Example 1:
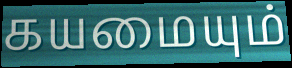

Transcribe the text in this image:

கயமையும்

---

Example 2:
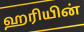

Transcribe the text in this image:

ஹரியின்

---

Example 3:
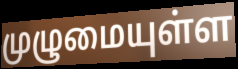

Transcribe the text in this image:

முழுமையுள்ள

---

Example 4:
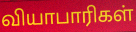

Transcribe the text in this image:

வியாபாரிகள்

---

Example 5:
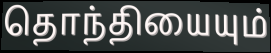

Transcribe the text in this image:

தொந்தியையும்